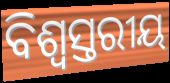
ବିଶ୍ବସ୍ତରୀୟ